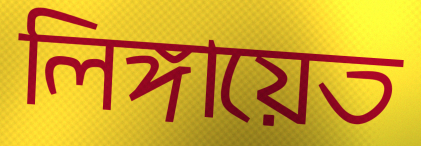
লিঙ্গায়েত